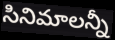
సినిమాలన్నీ